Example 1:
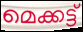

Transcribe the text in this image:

മെക്കട്ട്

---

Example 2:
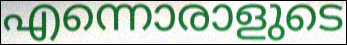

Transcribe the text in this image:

എന്നൊരാളുടെ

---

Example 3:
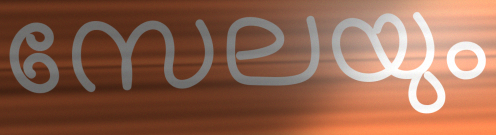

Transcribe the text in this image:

സേലയും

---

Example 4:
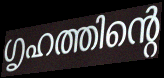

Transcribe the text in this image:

ഗൃഹത്തിന്റെ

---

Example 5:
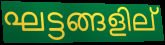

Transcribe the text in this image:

ഘട്ടങ്ങളില്